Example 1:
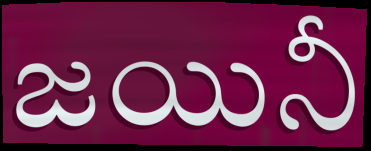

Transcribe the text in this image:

జయినీ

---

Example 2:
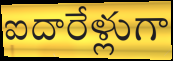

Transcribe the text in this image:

ఐదారేళ్లుగా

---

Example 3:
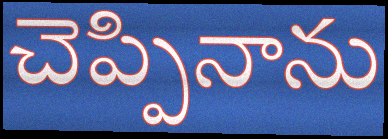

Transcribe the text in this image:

చెప్పినాను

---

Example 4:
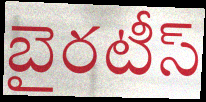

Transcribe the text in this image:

బైరటీస్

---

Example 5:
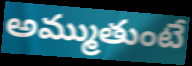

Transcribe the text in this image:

అమ్ముతుంటే